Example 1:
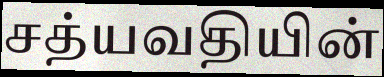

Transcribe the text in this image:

சத்யவதியின்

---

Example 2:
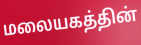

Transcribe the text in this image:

மலையகத்தின்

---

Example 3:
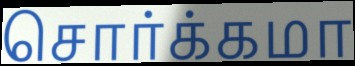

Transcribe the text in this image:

சொர்க்கமா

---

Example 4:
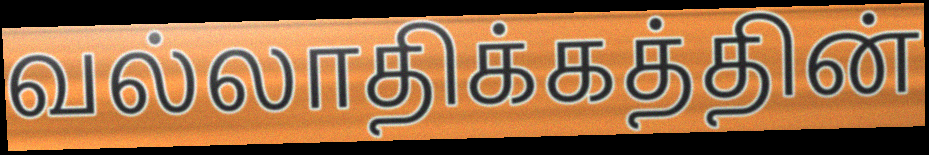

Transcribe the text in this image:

வல்லாதிக்கத்தின்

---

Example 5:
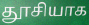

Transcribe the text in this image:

தூசியாக